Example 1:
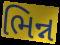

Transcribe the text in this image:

ભિન્ન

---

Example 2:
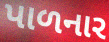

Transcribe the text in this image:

પાળનાર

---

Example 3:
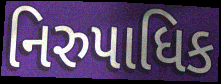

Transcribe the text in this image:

નિરુપાધિક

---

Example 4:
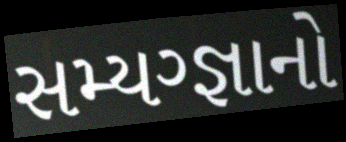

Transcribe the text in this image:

સમ્યગ્જ્ઞાનો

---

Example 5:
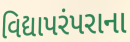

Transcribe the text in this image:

વિદ્યાપરંપરાના